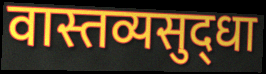
वास्तव्यसुद्धा